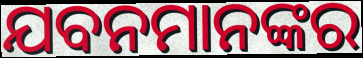
ଯବନମାନଙ୍କର